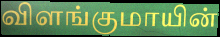
விளங்குமாயின்